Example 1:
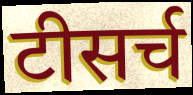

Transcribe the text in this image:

टीसर्च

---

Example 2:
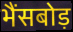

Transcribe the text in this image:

भैंसबोड़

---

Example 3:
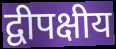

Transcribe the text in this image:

द्वीपक्षीय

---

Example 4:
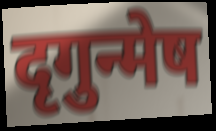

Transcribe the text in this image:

दृगुन्मेष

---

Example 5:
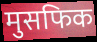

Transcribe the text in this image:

मुसफिक